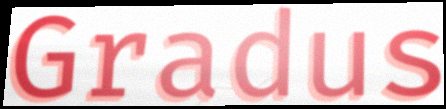
Gradus